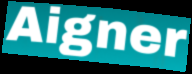
Aigner